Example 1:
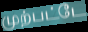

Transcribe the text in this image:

முற்பட்டே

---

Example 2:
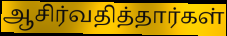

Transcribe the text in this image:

ஆசிர்வதித்தார்கள்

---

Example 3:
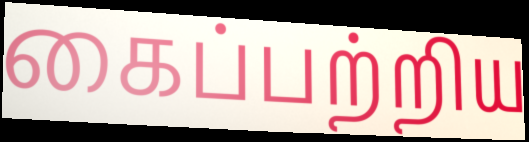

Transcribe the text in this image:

கைப்பற்றிய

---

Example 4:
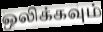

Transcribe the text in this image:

ஒலிக்கவும்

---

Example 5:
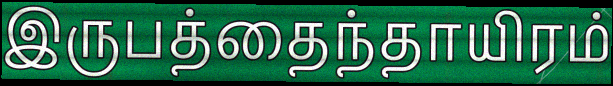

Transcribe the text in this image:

இருபத்தைந்தாயிரம்